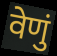
वेणुं